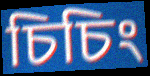
চিচিং